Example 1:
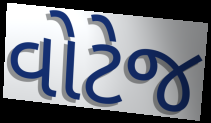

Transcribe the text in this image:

વોટેજ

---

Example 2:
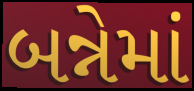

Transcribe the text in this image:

બન્નેમાં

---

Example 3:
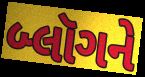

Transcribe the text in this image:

બ્લૉગને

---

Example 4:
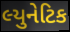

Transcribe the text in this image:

લ્યુનેટિક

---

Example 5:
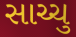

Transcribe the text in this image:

સાચ્ચુ